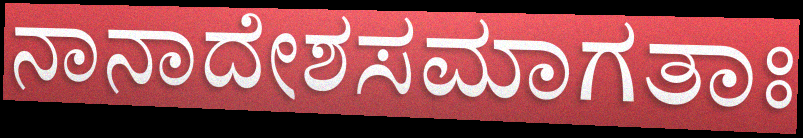
ನಾನಾದೇಶಸಮಾಗತಾಃ